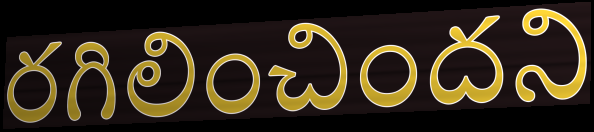
రగిలించిందని